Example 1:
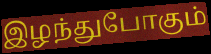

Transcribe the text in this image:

இழந்துபோகும்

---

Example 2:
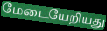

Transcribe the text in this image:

மேடையேறியது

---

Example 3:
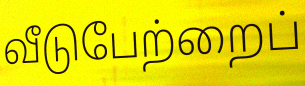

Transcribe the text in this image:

வீடுபேற்றைப்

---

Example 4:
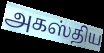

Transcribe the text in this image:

அகஸ்திய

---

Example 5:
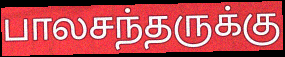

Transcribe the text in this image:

பாலசந்தருக்கு